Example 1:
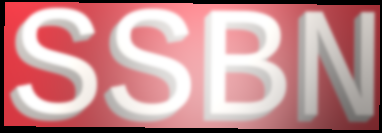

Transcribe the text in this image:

SSBN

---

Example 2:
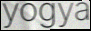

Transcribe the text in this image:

yogya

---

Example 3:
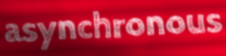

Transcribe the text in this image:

asynchronous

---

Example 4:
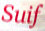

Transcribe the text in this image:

Suif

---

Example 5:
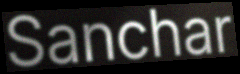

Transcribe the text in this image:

Sanchar